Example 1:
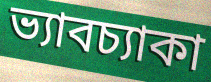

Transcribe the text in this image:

ভ্যাবচ্যাকা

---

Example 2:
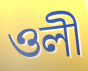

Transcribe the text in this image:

ওলী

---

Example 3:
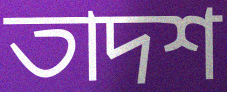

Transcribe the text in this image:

তাদশ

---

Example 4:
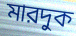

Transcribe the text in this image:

মারদুক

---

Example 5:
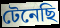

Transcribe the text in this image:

টেনেছি